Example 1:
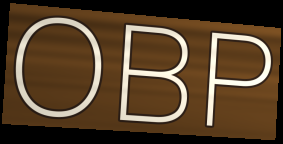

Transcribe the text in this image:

OBP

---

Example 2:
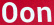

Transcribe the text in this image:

Oon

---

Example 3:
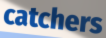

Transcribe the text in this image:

catchers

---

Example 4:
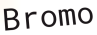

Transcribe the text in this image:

Bromo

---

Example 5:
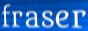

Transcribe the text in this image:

fraser